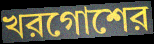
খরগোশের